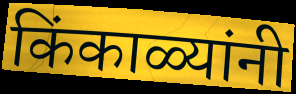
किंकाळ्यांनी